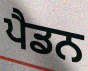
ਪੈਡਨ